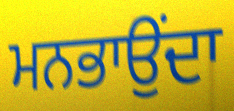
ਮਨਭਾਉਂਦਾ